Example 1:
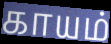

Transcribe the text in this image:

காயம்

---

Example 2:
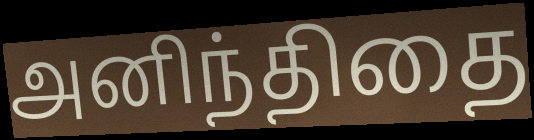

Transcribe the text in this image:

அனிந்திதை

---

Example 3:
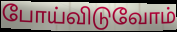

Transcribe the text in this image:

போய்விடுவோம்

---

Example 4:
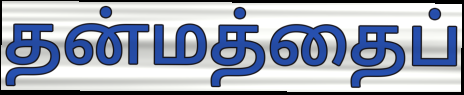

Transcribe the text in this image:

தன்மத்தைப்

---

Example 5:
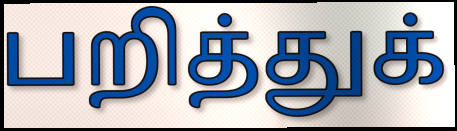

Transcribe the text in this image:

பறித்துக்